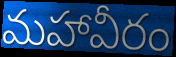
మహావీరం